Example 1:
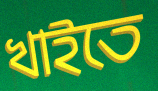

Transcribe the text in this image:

খাইতে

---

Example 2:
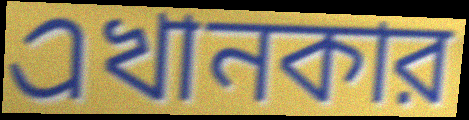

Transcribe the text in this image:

এখানকার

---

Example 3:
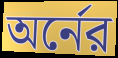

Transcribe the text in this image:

অর্নের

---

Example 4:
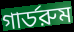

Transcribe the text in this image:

গার্ডরুম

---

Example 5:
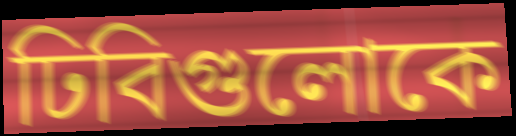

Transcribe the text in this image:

ঢিবিগুলোকে